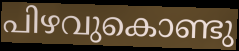
പിഴവുകൊണ്ടു